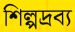
শিল্পদ্রব্য